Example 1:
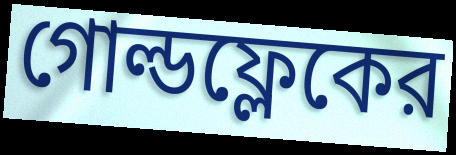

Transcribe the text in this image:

গোল্ডফ্লেকের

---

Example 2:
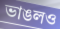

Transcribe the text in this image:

ভাঙলও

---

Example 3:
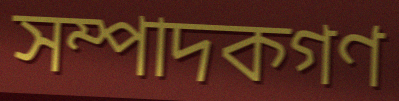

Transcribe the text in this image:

সম্পাদকগণ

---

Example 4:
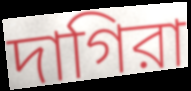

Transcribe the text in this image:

দাগিরা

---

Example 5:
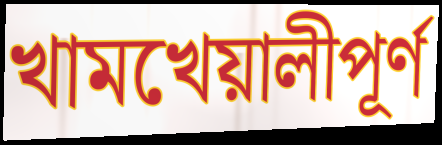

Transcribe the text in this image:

খামখেয়ালীপূর্ণ